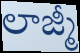
లాజ్మీ